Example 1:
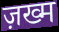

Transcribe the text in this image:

ज़ख्म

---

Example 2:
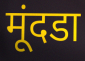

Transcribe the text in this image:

मूंदडा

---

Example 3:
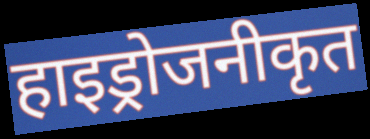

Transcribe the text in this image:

हाइड्रोजनीकृत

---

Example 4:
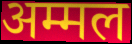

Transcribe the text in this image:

अम्मल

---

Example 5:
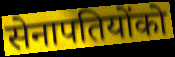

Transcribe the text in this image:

सेनापतियोंको